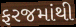
ફરજમાંથી